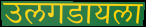
उलगडायला